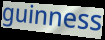
guinness